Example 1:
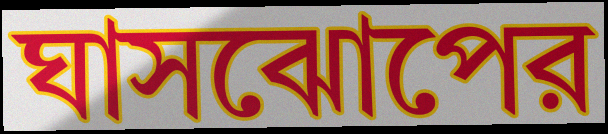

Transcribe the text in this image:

ঘাসঝোপের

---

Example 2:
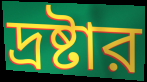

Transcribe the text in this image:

দ্রষ্টার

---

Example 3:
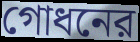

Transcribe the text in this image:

গোধনের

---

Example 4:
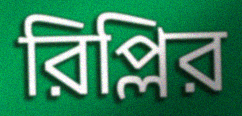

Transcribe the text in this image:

রিপ্লির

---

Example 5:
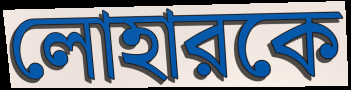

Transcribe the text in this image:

লোহারকে